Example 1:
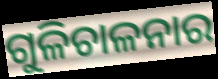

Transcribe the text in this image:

ଗୁଳିଚାଳନାର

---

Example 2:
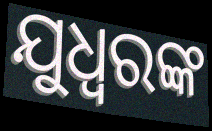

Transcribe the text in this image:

ଯୁଧ୍ୱରଙ୍କ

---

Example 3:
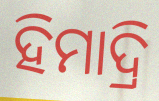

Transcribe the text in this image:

ହିମାଦ୍ରି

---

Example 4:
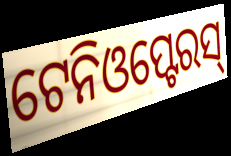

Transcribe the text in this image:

ଟେନିଓପ୍ଟେରସ୍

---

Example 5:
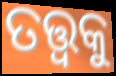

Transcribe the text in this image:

ତତ୍ତ୍ଵକୁ